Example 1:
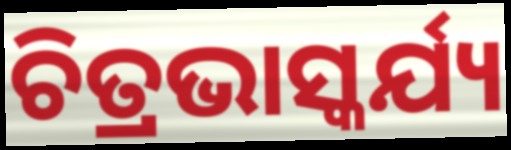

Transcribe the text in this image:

ଚିତ୍ରଭାସ୍କର୍ଯ୍ୟ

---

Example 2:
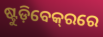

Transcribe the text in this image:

ଷ୍ଟୁଡ଼ିବେକ୍‌ରରେ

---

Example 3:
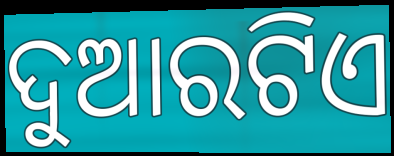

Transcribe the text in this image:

ଦୁଆରଟିଏ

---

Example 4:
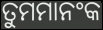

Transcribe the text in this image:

ତୁମମାନଂକ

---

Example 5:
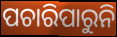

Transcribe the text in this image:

ପଚାରିପାରୁନି